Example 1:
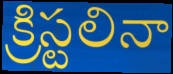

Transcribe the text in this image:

క్రిస్టలినా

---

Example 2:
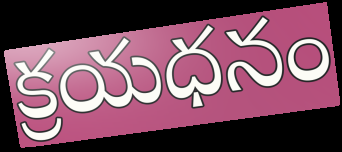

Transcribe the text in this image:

క్రయధనం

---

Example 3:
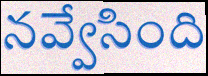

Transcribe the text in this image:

నవ్వేసింది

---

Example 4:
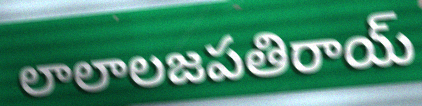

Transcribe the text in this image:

లాలాలజపతిరాయ్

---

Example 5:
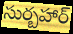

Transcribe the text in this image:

సుర్బహార్